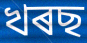
খৰছ